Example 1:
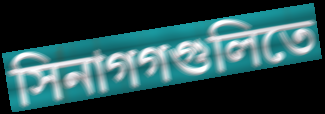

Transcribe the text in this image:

সিনাগগগুলিতে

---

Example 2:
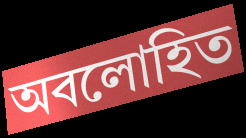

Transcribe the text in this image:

অবলোহিত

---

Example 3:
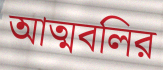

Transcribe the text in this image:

আত্মবলির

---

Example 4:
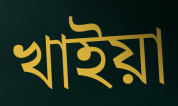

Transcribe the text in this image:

খাইয়া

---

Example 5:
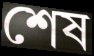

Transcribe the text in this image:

শেষ